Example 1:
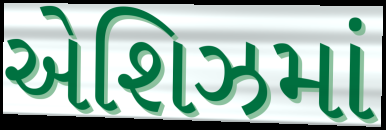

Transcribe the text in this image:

એશિઝમાં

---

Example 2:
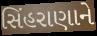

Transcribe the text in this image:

સિંહરાણાને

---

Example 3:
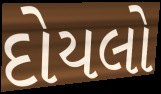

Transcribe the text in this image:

દોયલો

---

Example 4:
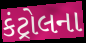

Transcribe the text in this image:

કંટ્રોલના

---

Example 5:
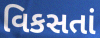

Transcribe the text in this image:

વિકસતાં